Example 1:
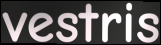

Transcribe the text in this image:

vestris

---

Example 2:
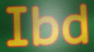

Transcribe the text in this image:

Ibd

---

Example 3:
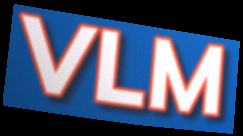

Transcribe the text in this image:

VLM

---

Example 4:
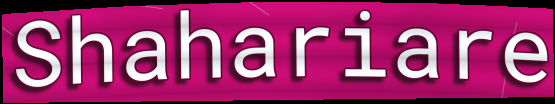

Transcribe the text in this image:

Shahariare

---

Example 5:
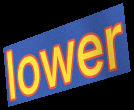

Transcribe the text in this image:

lower